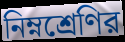
নিম্নশ্রেণির